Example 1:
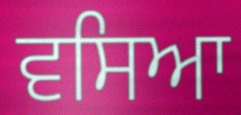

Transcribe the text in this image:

ਵਸਿਆ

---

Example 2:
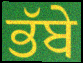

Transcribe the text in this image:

ਭੱਬੇ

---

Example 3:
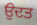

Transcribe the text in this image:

ਉਦਤ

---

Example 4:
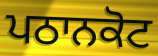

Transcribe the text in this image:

ਪਠਾਨਕੋਟ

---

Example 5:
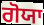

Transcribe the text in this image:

ਗੋਯਾ